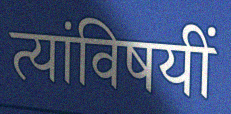
त्यांविषयीं